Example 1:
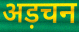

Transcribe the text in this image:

अड़चन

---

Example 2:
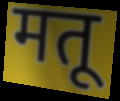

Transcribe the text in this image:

मतू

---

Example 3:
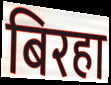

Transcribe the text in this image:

बिरहा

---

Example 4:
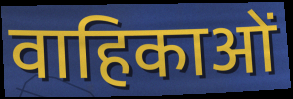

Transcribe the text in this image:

वाहिकाओं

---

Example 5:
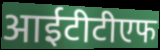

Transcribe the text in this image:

आईटीटीएफ